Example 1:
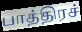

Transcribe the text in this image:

பாத்திரச்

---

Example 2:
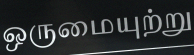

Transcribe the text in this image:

ஒருமையுற்று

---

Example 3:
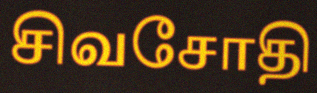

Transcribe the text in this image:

சிவசோதி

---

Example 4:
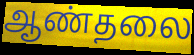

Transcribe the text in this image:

ஆண்தலை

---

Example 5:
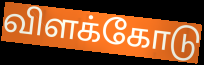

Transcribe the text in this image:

விளக்கோடு